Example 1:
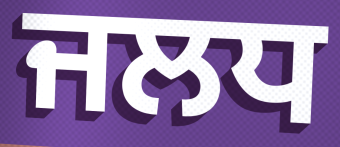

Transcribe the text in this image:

ਜਲਧ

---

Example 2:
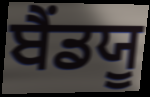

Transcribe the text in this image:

ਬੈਂਡਯੂ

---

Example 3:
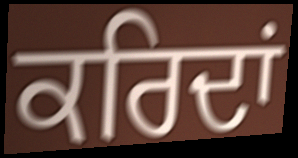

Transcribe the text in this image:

ਕਰਿਦਾਂ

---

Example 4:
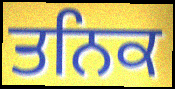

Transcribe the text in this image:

ਤਨਿਕ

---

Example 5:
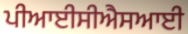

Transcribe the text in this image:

ਪੀਆਈਸੀਐਸਆਈ